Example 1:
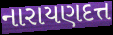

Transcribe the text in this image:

નારાયણદત્ત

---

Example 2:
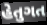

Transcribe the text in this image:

હેતુગત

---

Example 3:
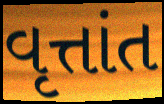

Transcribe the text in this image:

વૃત્તાંત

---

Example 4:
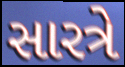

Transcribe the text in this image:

સારત્રે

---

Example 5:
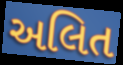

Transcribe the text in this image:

અલિત